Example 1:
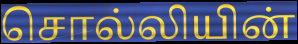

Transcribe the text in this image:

சொல்லியின்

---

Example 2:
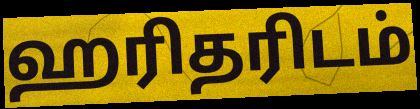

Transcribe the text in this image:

ஹரிதரிடம்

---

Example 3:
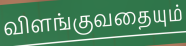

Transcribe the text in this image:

விளங்குவதையும்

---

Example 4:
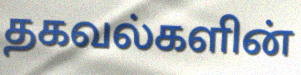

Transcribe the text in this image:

தகவல்களின்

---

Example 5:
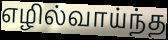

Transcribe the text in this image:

எழில்வாய்ந்த